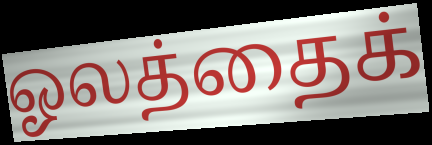
ஓலத்தைக்